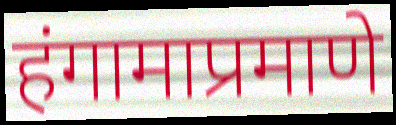
हंगामाप्रमाणे